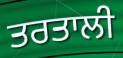
ਤਰਤਾਲੀ